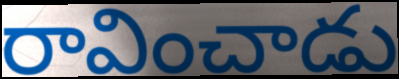
రావించాడు